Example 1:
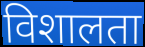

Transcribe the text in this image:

विशालता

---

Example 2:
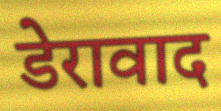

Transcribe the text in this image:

डेरावाद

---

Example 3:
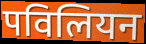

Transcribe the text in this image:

पविलियन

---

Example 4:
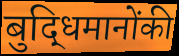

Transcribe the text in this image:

बुद्धिमानोंकी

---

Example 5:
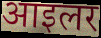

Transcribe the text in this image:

आइलर